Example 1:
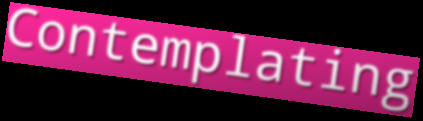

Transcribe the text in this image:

Contemplating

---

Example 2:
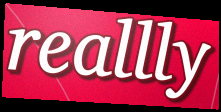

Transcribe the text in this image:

reallly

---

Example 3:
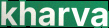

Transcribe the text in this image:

kharva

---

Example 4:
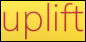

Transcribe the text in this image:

uplift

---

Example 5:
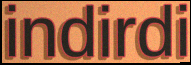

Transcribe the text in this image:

indirdi